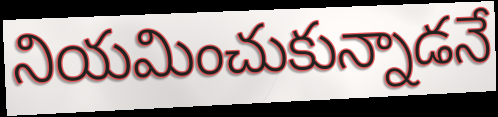
నియమించుకున్నాడనే